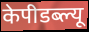
केपीडब्ल्यू